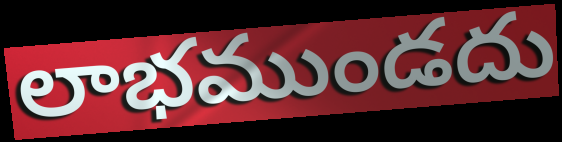
లాభముండదు